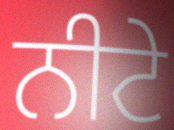
ਨੀਟੇ